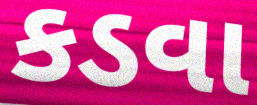
કડવા